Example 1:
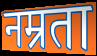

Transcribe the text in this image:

नम्रता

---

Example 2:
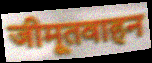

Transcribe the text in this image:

जीमूतवाहन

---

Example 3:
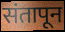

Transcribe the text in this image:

संतापून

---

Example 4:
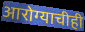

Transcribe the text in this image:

आरोग्याचीही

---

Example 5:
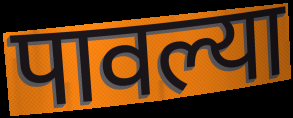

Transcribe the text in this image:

पावल्या